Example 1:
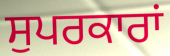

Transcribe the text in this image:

ਸੁਪਰਕਾਰਾਂ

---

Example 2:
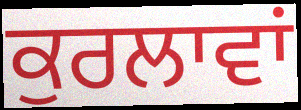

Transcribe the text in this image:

ਕੁਰਲਾਵਾਂ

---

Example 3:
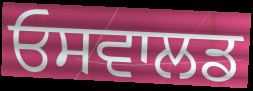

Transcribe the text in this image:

ਓਸਵਾਲਡ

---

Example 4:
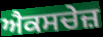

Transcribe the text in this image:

ਐਕਸਚੇਜ਼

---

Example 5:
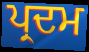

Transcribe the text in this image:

ਪ੍ਰਦਮ